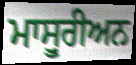
ਮਾਸੂਰੀਅਨ